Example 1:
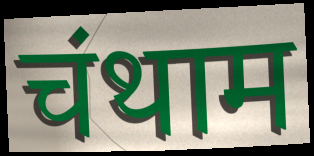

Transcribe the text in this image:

चंथाम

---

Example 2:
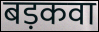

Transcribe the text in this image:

बड़कवा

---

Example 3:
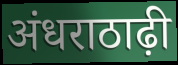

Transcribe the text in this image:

अंधराठाढ़ी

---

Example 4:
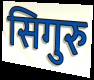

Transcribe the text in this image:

सिगुरु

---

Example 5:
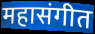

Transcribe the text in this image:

महासंगीत